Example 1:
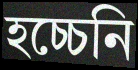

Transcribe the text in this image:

হচ্চেনি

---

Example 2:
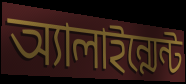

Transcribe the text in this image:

অ্যালাইন্মেন্ট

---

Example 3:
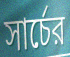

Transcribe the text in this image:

সার্চের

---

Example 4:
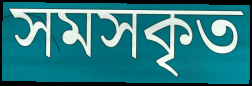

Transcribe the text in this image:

সমসকৃত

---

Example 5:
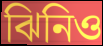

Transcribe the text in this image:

ঝিনিও